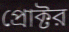
প্রোক্টর